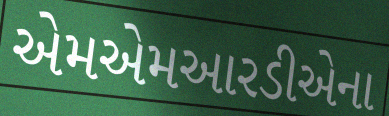
એમએમઆરડીએના